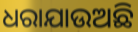
ଧରାଯାଉଅଛି